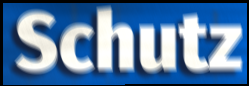
Schutz